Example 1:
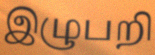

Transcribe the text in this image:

இழுபறி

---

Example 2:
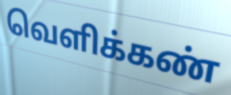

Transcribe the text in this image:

வெளிக்கண்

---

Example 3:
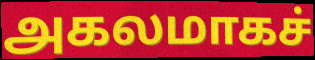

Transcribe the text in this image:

அகலமாகச்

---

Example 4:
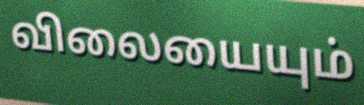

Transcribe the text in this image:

விலையையும்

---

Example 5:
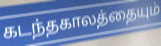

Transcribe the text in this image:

கடந்தகாலத்தையும்